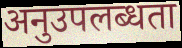
अनुउपलब्धता